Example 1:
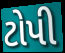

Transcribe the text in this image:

ટોપી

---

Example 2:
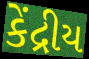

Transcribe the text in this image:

કેંદ્રીય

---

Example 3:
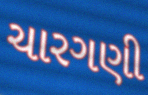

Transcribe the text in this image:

ચારગણી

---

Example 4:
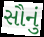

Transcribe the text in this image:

સૌનું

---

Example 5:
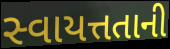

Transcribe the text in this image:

સ્વાયત્તતાની